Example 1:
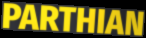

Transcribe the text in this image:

PARTHIAN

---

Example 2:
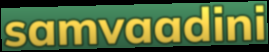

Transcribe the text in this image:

samvaadini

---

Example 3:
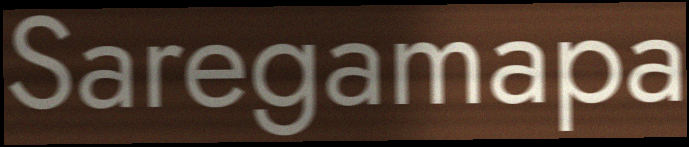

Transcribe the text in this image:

Saregamapa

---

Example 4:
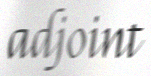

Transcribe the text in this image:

adjoint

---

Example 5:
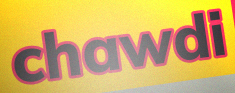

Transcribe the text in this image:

chawdi